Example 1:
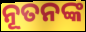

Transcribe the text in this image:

ନୂତନଙ୍କ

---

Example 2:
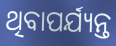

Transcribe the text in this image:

ଥିବାପର୍ଯ୍ୟନ୍ତ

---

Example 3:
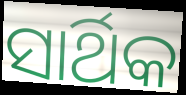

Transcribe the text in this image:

ସାର୍ଥିକ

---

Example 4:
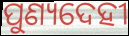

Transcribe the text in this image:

ପୁଣ୍ୟଦେହୀ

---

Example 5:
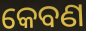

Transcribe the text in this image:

କେବଣ